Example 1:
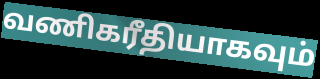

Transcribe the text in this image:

வணிகரீதியாகவும்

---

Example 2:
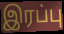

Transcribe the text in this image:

இரப்பு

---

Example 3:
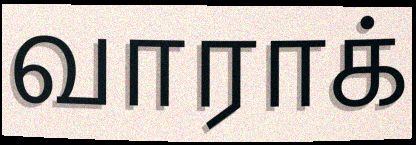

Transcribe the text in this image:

வாராக்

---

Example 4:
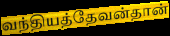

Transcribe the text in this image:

வந்தியத்தேவன்தான்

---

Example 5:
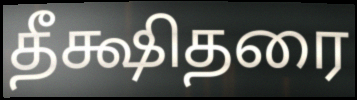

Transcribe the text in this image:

தீக்ஷிதரை